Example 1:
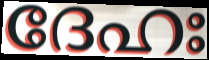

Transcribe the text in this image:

ദേഹഃ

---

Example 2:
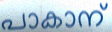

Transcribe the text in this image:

പാകാന്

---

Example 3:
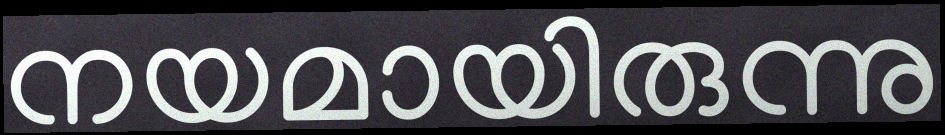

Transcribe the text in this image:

നയമായിരുന്നു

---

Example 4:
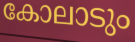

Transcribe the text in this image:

കോലാടും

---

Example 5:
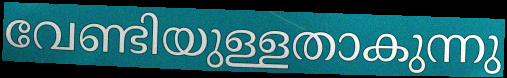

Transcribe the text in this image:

വേണ്ടിയുള്ളതാകുന്നു